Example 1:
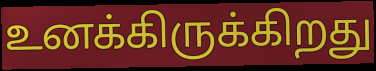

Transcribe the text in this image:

உனக்கிருக்கிறது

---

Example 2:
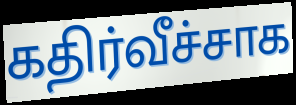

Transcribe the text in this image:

கதிர்வீச்சாக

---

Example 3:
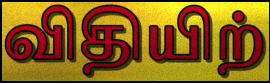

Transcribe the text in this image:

விதியிற்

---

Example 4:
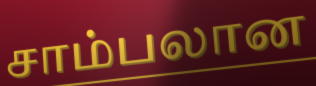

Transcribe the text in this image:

சாம்பலான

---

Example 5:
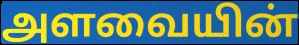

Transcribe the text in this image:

அளவையின்